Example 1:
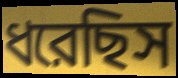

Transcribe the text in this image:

ধরেছিস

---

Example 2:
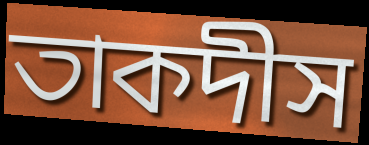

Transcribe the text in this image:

তাকদীস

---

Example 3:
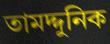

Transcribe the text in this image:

তামদ্দুনিক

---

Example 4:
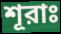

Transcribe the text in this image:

শূরাঃ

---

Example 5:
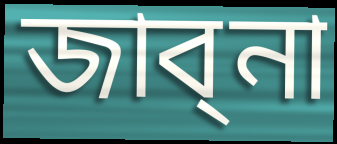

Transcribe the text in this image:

জাব্‌না